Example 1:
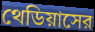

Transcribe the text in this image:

থেডিয়াসের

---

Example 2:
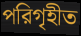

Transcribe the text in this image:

পরিগৃহীত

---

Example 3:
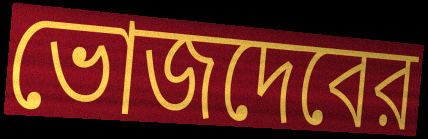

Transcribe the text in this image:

ভোজদেবের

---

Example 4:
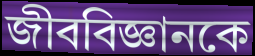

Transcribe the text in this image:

জীববিজ্ঞানকে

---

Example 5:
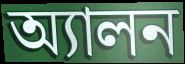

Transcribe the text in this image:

অ্যালন